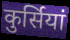
कुर्सियां